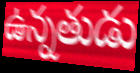
ఉన్నతుడు